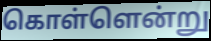
கொள்ளென்று